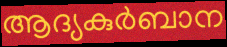
ആദ്യകുർബാന